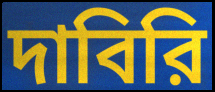
দাবিরি